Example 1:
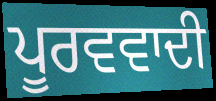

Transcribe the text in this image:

ਪੂਰਵਵਾਦੀ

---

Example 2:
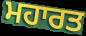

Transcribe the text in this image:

ਮਹਾਰਤ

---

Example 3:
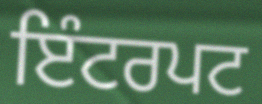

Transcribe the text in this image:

ਇੰਟਰਪਟ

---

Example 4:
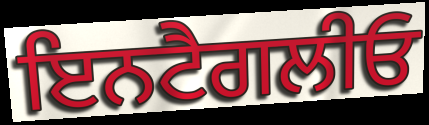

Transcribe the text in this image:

ਇਨਟੈਗਲੀਓ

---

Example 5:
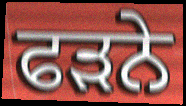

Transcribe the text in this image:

ਫੜਨੇ